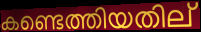
കണ്ടെത്തിയതില്